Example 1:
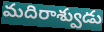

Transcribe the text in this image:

మదిరాశ్వుడు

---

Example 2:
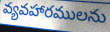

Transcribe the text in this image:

వ్యవహారములను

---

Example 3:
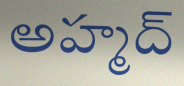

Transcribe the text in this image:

అహ్మద్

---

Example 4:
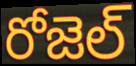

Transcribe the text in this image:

రోజెల్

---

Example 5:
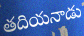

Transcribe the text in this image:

తదియనాడు